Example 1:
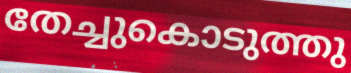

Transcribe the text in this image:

തേച്ചുകൊടുത്തു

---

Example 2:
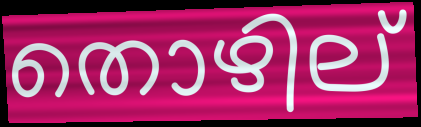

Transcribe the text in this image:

തൊഴില്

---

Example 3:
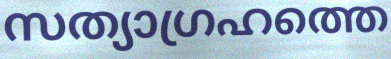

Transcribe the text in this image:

സത്യാഗ്രഹത്തെ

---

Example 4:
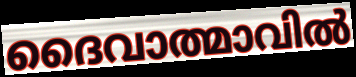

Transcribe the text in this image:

ദൈവാത്മാവിൽ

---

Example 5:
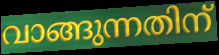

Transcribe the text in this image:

വാങ്ങുന്നതിന്